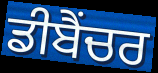
ਡੀਬੈਂਚਰ